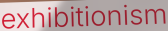
exhibitionism